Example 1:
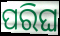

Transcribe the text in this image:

ପରିଘ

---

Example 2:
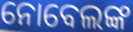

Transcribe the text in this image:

ନୋବେଲଙ୍କ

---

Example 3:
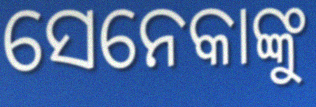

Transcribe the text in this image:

ସେନେକାଙ୍କୁ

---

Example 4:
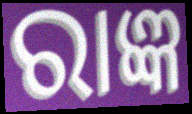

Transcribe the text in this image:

ରାଜ୍ଞ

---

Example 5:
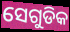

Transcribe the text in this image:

ସେଗୁଡିକ